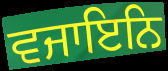
ਵਜਾਇਨਿ